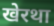
खेरथा